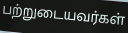
பற்றுடையவர்கள்